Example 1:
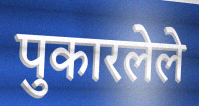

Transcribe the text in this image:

पुकारलेले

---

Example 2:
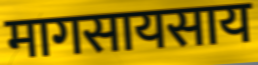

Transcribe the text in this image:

मागसायसाय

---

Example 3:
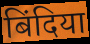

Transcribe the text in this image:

बिंदिया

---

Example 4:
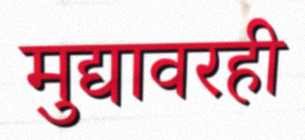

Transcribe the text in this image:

मुद्यावरही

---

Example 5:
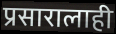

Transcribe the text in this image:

प्रसारालाही